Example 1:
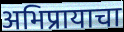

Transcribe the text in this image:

अभिप्रायाचा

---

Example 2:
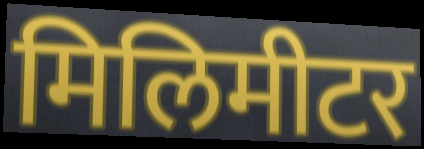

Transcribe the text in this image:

मिलिमीटर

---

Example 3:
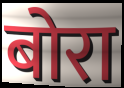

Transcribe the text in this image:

बोरा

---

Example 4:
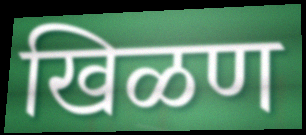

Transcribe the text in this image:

खिळण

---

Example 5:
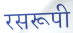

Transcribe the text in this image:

रसरूपी